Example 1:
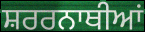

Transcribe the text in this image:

ਸ਼ਰਰਨਾਥੀਆਂ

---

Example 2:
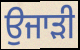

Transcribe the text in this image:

ਉਜਾੜੀ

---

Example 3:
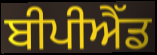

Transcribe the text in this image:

ਬੀਪੀਐੱਡ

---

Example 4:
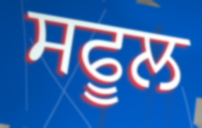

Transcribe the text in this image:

ਸਫੂਲ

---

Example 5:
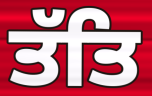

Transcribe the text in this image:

ਤੱਤਿ